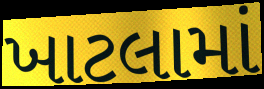
ખાટલામાં